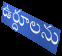
ఉర్దూలను